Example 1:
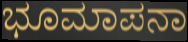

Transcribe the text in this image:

ಭೂಮಾಪನಾ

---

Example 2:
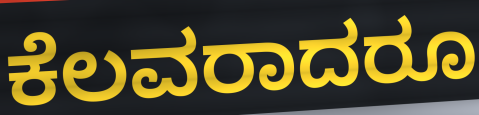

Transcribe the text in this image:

ಕೆಲವರಾದರೂ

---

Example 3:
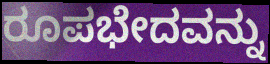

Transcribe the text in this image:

ರೂಪಭೇದವನ್ನು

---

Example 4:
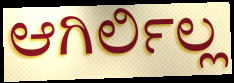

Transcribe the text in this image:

ಆಗಿರ್ಲಿಲ್ಲ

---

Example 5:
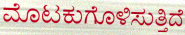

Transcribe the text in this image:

ಮೊಟಕುಗೊಳಿಸುತ್ತಿದೆ